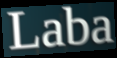
Laba